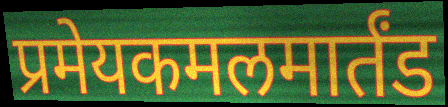
प्रमेयकमलमार्तंड